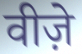
वीज़े